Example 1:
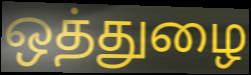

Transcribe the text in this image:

ஒத்துழை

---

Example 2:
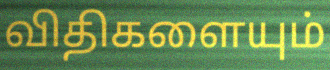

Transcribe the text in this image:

விதிகளையும்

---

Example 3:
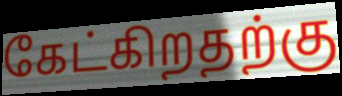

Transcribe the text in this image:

கேட்கிறதற்கு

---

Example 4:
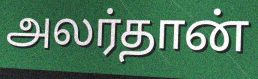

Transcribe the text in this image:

அலர்தான்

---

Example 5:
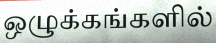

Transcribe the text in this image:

ஒழுக்கங்களில்